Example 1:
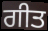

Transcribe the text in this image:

ਗੀਤ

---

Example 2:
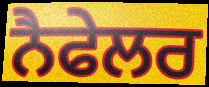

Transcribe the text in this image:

ਨੈਫੇਲਰ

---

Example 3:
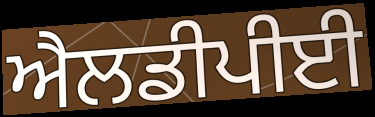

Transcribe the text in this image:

ਐਲਡੀਪੀਈ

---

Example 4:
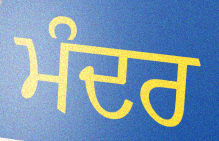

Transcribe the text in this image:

ਮੰਦਰ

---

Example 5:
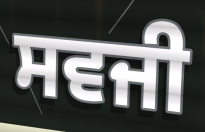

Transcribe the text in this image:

ਸਵਜੀ